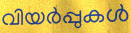
വിയർപ്പുകൾ